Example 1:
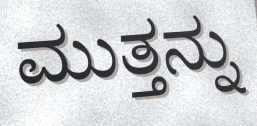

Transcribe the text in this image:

ಮುತ್ತನ್ನು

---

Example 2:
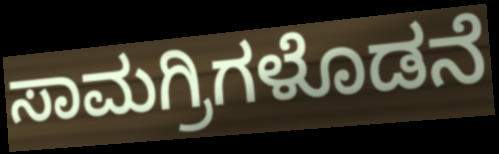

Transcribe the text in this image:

ಸಾಮಗ್ರಿಗಳೊಡನೆ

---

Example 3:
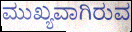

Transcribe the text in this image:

ಮುಖ್ಯವಾಗಿರುವ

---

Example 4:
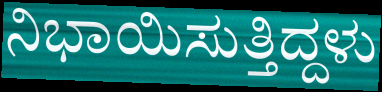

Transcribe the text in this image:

ನಿಭಾಯಿಸುತ್ತಿದ್ದಳು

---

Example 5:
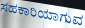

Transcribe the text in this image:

ಸಹಕಾರಿಯಾಗುವ